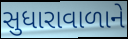
સુધારાવાળાને